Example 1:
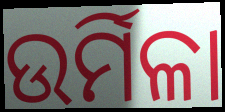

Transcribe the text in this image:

ଉର୍ମିଳା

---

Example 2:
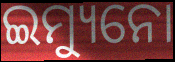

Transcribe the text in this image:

ଇମ୍ୟୁନୋ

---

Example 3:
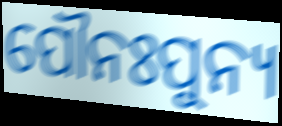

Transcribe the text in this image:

ପୌନଃପୁନ୍ୟ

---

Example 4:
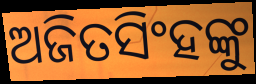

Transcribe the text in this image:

ଅଜିତସିଂହଙ୍କୁ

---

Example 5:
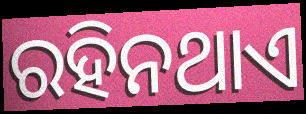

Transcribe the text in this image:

ରହିନଥାଏ